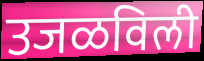
उजळविली